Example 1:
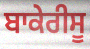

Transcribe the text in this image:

ਬਾਕੇਰੀਸੂ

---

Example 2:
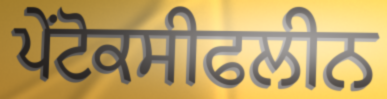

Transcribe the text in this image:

ਪੇਂਟੋਕਸੀਫਲੀਨ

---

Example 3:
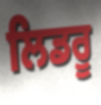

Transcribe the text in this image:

ਲਿਡਰੂ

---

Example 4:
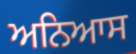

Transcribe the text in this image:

ਅਨਿਆਸ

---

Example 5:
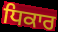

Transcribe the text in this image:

ਧਿਕਾਰ